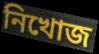
নিখোজ